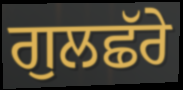
ਗੁਲਛੱਰੇ